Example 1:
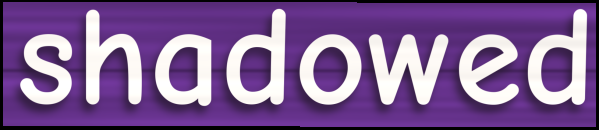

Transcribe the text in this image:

shadowed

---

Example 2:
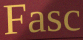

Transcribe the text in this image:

Fasc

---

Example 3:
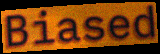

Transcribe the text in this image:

Biased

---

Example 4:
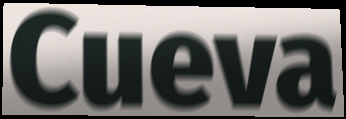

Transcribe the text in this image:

Cueva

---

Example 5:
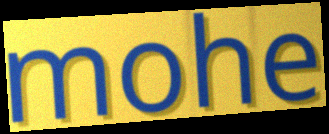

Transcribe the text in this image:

mohe